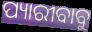
ପ୍ୟାରୀବାବୁ